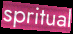
spritual